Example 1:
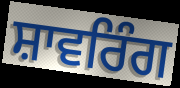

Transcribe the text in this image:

ਸ਼ਾਵਰਿੰਗ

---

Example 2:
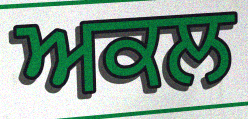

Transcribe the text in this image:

ਅਕਲ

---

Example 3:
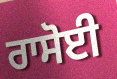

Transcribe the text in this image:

ਰਾਸੋਈ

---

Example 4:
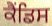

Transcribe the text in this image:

ਕੈਂਡਿਸ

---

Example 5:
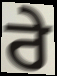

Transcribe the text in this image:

ਰੇ